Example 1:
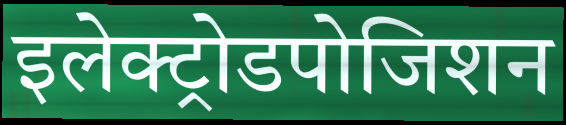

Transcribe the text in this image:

इलेक्ट्रोडपोजिशन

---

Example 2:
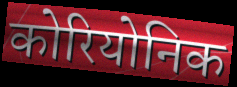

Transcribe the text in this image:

कोरियोनिक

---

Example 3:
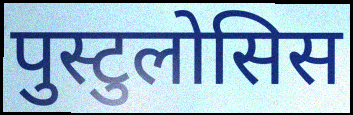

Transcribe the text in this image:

पुस्टुलोसिस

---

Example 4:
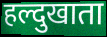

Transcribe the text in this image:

हल्दुखाता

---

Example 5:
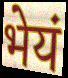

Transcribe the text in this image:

भेयं